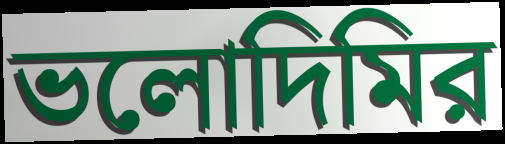
ভলোদিমির